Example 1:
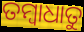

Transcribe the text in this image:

ତମ୍ବାଧାତୁ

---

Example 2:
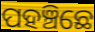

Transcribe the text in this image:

ପହଞ୍ଚିଛେ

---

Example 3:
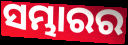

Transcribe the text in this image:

ସମ୍ଭାରର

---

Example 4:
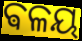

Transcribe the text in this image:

ଵଳୟ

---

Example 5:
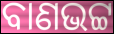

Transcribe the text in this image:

ବାଣଭଟ୍ଟ